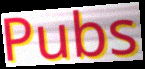
Pubs